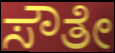
ಸೌತೇ